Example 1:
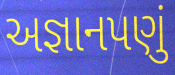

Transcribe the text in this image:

અજ્ઞાનપણું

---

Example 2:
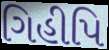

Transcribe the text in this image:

ગિહીપિ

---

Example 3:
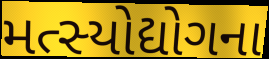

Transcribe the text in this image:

મત્સ્યોદ્યોગના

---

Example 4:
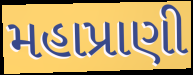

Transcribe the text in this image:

મહાપ્રાણી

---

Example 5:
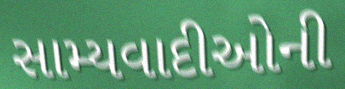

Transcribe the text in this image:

સામ્યવાદીઓની